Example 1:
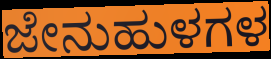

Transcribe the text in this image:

ಜೇನುಹುಳಗಳ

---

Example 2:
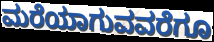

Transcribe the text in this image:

ಮರೆಯಾಗುವವರೆಗೂ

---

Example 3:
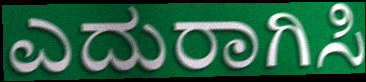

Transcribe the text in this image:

ಎದುರಾಗಿಸಿ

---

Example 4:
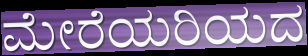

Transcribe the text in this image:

ಮೇರೆಯರಿಯದ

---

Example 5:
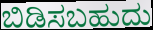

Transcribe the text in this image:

ಬಿಡಿಸಬಹುದು